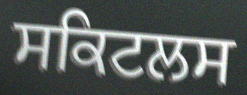
ਸਕਿਟਲਸ